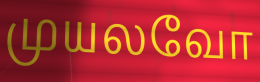
முயலவோ